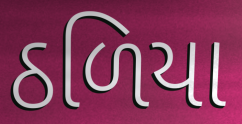
ઠળિયા